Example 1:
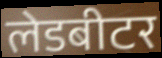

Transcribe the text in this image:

लेडबीटर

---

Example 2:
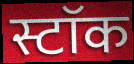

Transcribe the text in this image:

स्टॉक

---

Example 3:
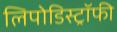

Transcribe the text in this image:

लिपोडिस्ट्रॉफी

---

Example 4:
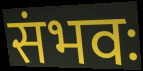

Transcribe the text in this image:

संभवः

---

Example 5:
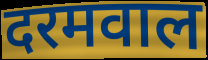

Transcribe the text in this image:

दरमवाल